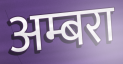
अम्बरा